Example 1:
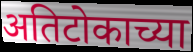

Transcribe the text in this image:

अतिटोकाच्या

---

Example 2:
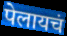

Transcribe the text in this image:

पेलायचं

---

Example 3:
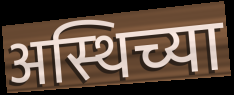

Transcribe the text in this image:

अस्थिच्या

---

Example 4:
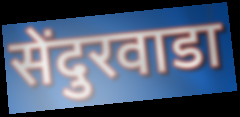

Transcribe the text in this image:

सेंदुरवाडा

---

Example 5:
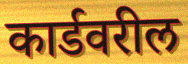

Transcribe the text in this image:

कार्डवरील